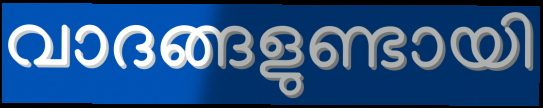
വാദങ്ങളുണ്ടായി